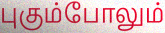
புகும்போலும்